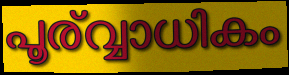
പൂര്വ്വാധികം